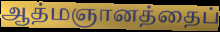
ஆத்மஞானத்தைப்